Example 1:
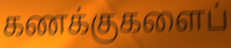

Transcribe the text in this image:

கணக்குகளைப்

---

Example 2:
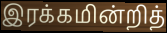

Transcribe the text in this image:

இரக்கமின்றித்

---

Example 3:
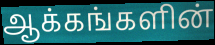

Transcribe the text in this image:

ஆக்கங்களின்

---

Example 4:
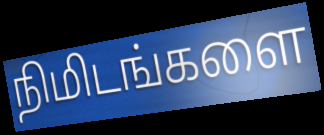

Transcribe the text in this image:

நிமிடங்களை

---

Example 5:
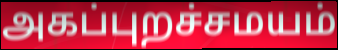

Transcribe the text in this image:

அகப்புறச்சமயம்